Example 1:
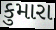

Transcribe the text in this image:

કુમારા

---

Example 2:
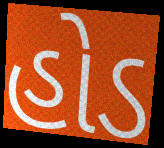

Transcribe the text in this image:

હોડ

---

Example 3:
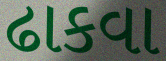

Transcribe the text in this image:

ઢાકવા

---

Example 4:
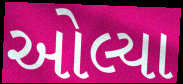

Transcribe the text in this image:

ઓલ્યા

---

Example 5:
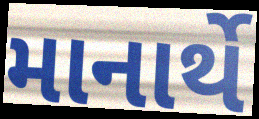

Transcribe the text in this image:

માનાર્થે